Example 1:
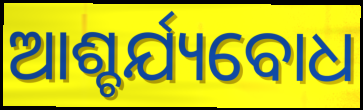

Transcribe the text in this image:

ଆଶ୍ଚର୍ଯ୍ୟବୋଧ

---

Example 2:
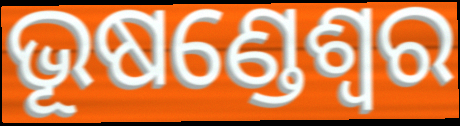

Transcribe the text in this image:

ଭୂଷଣ୍ଡେଶ୍ଵର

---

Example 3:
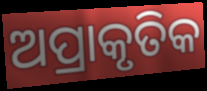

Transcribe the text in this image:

ଅପ୍ରାକୃତିକ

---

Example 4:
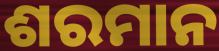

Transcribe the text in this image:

ଶରମାନ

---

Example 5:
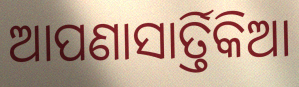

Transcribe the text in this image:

ଆପଣାସାର୍ତ୍ତିକିଆ